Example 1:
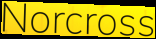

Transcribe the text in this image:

Norcross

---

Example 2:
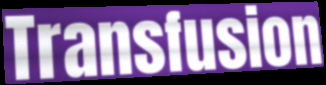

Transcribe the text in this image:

Transfusion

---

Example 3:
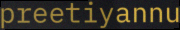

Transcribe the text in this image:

preetiyannu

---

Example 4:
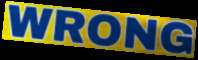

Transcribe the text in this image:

WRONG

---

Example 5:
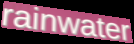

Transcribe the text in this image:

rainwater